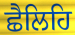
ਛੈਲਿਹਿ